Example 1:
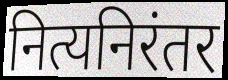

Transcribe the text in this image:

नित्यनिरंतर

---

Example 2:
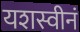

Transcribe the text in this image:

यशस्वीनं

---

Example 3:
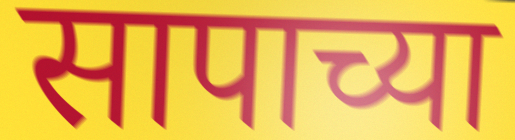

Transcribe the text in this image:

सापाच्या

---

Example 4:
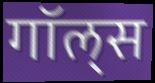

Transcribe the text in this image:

गॉल्स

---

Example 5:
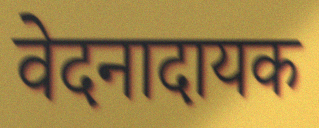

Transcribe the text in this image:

वेदनादायक